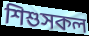
শিশুসকল